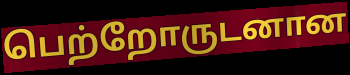
பெற்றோருடனான